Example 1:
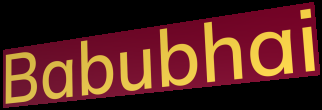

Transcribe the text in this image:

Babubhai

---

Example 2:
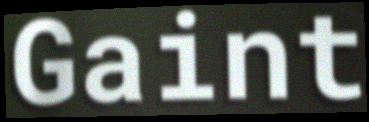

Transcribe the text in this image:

Gaint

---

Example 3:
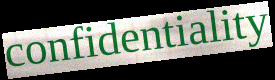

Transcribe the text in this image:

confidentiality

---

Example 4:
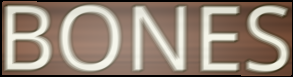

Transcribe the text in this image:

BONES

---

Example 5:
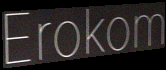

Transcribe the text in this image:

Erokom